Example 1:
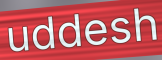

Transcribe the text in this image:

uddesh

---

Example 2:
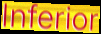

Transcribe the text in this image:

Inferior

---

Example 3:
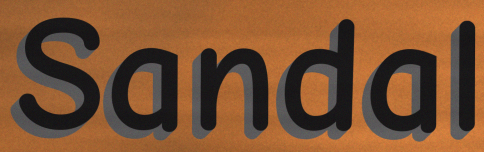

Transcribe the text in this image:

Sandal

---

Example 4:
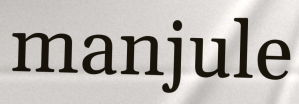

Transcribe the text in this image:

manjule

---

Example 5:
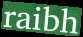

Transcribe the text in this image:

raibh